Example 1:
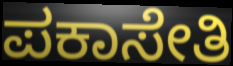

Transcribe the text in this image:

ಪಕಾಸೇತಿ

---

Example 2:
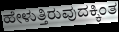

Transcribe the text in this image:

ಹೇಳುತ್ತಿರುವುದಕ್ಕಿಂತ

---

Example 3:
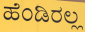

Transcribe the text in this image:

ಹೆಂಡಿರಲ್ಲ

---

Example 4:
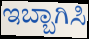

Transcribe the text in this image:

ಇಬ್ಬಾಗಿಸಿ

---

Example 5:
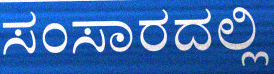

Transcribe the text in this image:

ಸಂಸಾರದಲ್ಲಿ